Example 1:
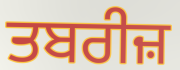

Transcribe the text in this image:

ਤਬਰੀਜ਼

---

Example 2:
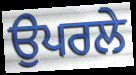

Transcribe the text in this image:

ਉਪਰਲੇ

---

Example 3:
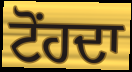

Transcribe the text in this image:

ਟੋਂਹਦਾ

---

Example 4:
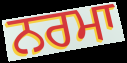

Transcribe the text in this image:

ਨਰਮਾ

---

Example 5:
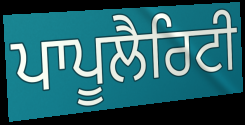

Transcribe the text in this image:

ਪਾਪੂਲੈਰਿਟੀ